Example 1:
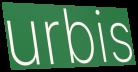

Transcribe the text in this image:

urbis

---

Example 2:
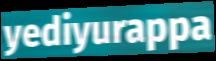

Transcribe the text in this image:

yediyurappa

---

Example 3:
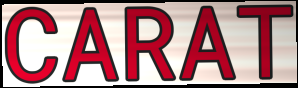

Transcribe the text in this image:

CARAT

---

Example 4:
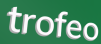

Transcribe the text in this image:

trofeo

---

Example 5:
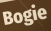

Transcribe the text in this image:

Bogie